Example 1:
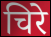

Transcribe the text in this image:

चिरे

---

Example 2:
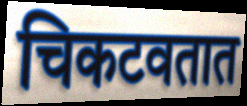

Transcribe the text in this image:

चिकटवतात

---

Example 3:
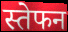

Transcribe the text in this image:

स्तेफन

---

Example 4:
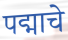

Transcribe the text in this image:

पद्माचे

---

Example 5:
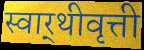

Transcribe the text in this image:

स्वार्थीवृत्ती